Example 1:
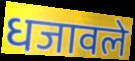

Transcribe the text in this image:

धजावले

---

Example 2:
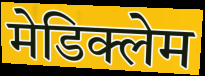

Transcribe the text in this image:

मेडिक्लेम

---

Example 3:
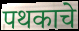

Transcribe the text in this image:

पथकाचे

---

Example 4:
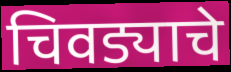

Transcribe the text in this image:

चिवड्याचे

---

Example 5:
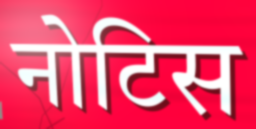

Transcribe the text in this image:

नोटिस